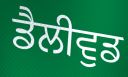
ਡੈਲੀਵੁਡ